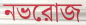
নভরোজ